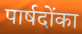
पार्षदोंका